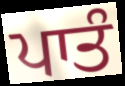
ਪਾਤੰ